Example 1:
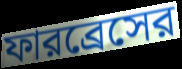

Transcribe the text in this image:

ফারব্রেসের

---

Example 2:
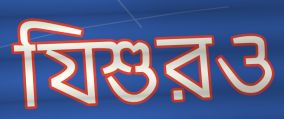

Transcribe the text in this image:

যিশুরও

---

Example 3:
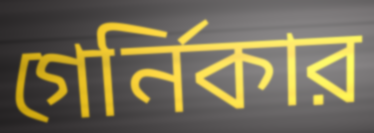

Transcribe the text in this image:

গের্নিকার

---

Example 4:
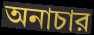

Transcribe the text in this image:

অনাচার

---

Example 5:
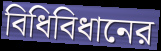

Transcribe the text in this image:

বিধিবিধানের